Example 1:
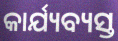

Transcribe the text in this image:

କାର୍ଯ୍ୟବ୍ୟସ୍ତ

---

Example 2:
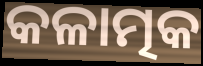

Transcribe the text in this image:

କଳାତ୍ମକ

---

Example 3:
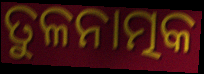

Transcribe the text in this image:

ତୁଳନାତ୍ମକ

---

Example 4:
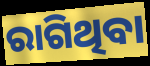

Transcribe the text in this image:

ରାଗିଥିବା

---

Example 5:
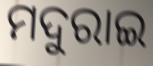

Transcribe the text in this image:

ମଦୁରାଇ